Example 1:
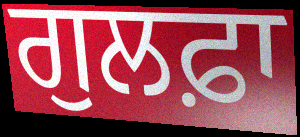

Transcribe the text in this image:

ਗੁਲਫ਼ਾ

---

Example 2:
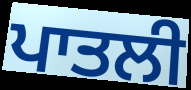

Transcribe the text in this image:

ਪਾਤਲੀ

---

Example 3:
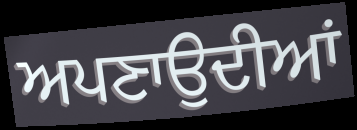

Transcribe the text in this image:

ਅਪਣਾਉਦੀਆਂ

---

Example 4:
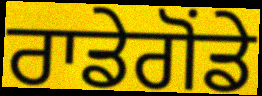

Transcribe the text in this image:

ਰਾਡੇਗੋਂਡੇ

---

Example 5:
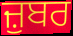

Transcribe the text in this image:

ਜ਼ੁਬਰ